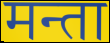
मन्ता